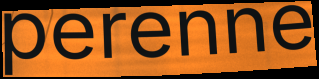
perenne